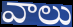
వాలు